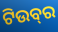
ଟିଉବ୍‍ର